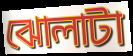
ঝোলাটা